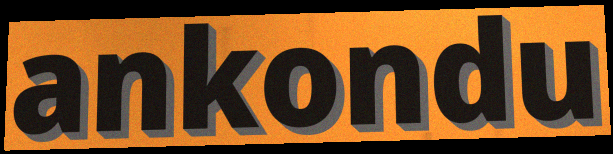
ankondu